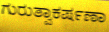
ಗುರುತ್ವಾಕರ್ಷಣಾ